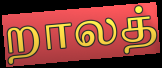
றாலத்